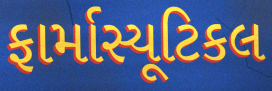
ફાર્માસ્યૂટિકલ